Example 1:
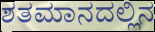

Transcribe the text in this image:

ಶತಮಾನದಲ್ಲಿನ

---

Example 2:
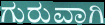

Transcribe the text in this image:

ಗುರುವಾಗಿ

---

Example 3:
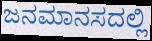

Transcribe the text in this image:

ಜನಮಾನಸದಲ್ಲಿ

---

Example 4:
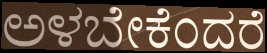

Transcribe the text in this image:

ಅಳಬೇಕೆಂದರೆ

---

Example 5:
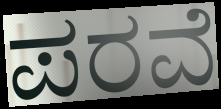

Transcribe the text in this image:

ಪರವೆ